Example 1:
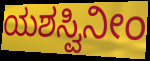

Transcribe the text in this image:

ಯಶಸ್ವಿನೀಂ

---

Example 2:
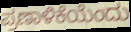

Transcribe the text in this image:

ಪ್ರಣಾಳಿಕೆಯೆಂದು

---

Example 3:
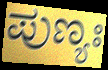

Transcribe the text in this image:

ಪುಣ್ಯಃ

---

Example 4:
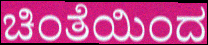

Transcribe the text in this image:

ಚಿಂತೆಯಿಂದ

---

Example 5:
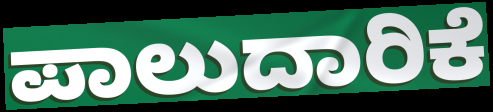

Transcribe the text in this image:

ಪಾಲುದಾರಿಕೆ